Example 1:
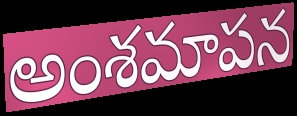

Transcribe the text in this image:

అంశమాపన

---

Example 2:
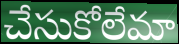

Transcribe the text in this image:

చేసుకోలేమా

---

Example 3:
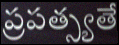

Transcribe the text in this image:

ప్రపత్స్యతే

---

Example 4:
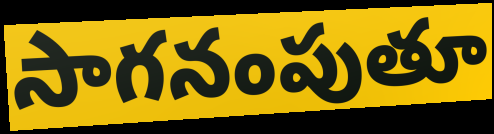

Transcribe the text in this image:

సాగనంపుతూ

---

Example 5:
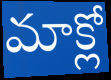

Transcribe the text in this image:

మాక్లో